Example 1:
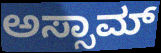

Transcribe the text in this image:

ಅಸ್ಸಾಮ್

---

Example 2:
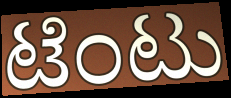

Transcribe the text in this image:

ಟೆಂಟು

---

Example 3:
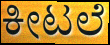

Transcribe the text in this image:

ಕೀಟಲೆ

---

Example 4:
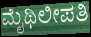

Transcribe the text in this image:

ಮೈಥಿಲೀಪತಿ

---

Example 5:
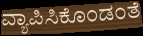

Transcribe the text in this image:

ವ್ಯಾಪಿಸಿಕೊಂಡಂತೆ